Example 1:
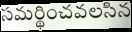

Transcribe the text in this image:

సమర్థించవలసిన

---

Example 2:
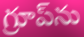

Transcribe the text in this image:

గ్రూప్‌ను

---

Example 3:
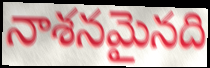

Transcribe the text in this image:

నాశనమైనది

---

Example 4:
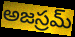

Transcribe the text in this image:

అజస్రమ్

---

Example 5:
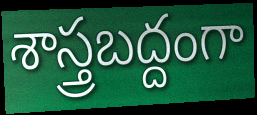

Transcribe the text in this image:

శాస్త్రబద్దంగా